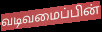
வடிவமைப்பின்